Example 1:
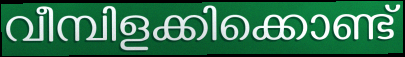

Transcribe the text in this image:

വീമ്പിളക്കിക്കൊണ്ട്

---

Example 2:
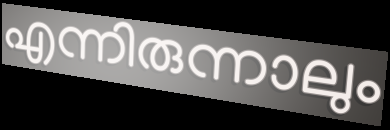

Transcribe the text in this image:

എന്നിരുന്നാലും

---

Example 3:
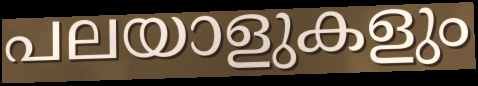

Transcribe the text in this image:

പലയാളുകളും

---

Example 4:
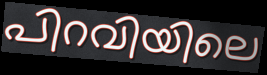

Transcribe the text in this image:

പിറവിയിലെ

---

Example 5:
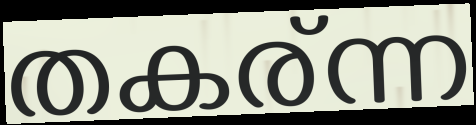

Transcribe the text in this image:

തകര്ന്ന